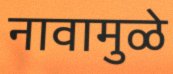
नावामुळे